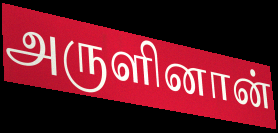
அருளினான்